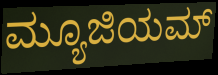
ಮ್ಯೂಜಿಯಮ್